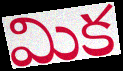
మిక